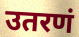
उतरणं